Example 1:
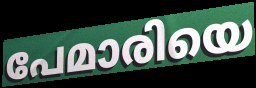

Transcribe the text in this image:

പേമാരിയെ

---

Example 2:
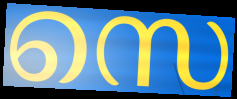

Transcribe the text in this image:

സെ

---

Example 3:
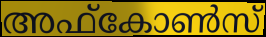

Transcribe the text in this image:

അഫ്കോൺസ്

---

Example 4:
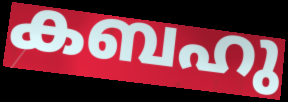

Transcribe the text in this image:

കബഹു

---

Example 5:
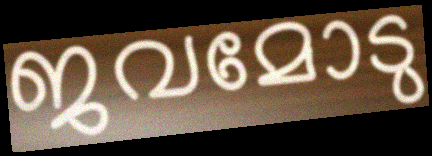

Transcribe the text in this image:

ജവമോടു